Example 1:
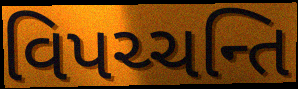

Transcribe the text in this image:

વિપચ્ચન્તિ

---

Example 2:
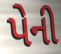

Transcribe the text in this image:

પેની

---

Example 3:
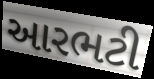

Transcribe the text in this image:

આરભટી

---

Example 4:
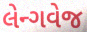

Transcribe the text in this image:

લેન્ગવેજ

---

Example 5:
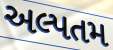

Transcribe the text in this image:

અલ્પતમ